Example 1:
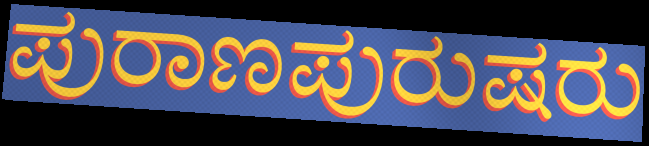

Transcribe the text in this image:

ಪುರಾಣಪುರುಷರು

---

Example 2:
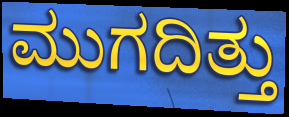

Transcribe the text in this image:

ಮುಗದಿತ್ತು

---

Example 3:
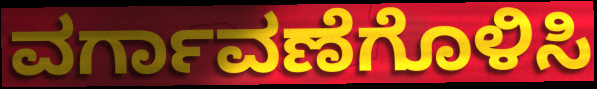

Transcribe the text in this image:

ವರ್ಗಾವಣೆಗೊಳಿಸಿ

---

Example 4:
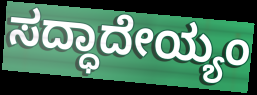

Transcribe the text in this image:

ಸದ್ಧಾದೇಯ್ಯಂ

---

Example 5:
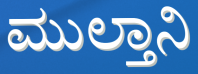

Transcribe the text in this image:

ಮುಲ್ತಾನಿ